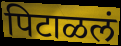
पिटाळलं